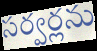
సర్వర్లను